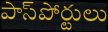
పాస్‌పోర్టులు